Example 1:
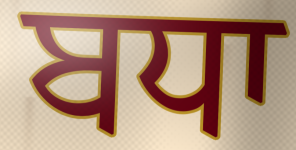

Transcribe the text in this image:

ਬਧਾ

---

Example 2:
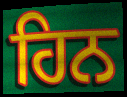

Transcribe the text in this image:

ਹਿਨ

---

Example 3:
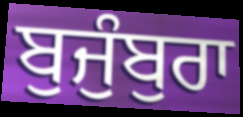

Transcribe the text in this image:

ਬੁਜੁੰਬੁਰਾ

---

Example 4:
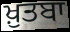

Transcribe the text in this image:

ਖ਼ੁਤਬਾ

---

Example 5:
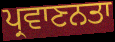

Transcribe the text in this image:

ਪ੍ਰਵਾਣਨਤਾ